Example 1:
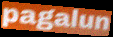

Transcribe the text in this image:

pagalun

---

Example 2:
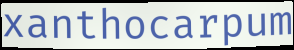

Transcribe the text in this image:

xanthocarpum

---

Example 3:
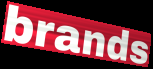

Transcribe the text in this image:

brands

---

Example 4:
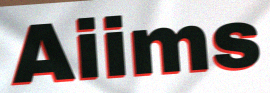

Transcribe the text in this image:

Aiims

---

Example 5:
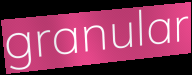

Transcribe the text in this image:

granular